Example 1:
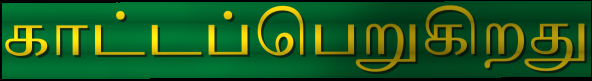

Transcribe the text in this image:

காட்டப்பெறுகிறது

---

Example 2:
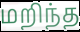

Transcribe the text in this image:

மறிந்த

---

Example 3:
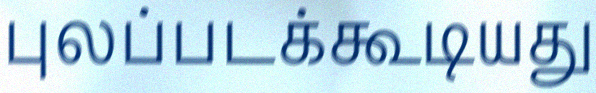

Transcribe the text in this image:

புலப்படக்கூடியது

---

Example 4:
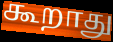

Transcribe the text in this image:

கூறாது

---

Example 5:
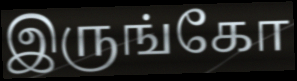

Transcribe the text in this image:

இருங்கோ